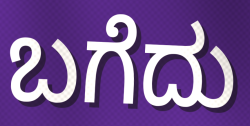
ಬಗೆದು